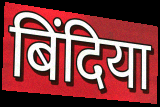
बिंदिया